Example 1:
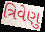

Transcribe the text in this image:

ત્રિવેણુ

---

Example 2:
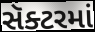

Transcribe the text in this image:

સૅક્ટરમાં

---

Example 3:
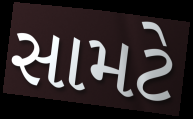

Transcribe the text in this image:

સામટે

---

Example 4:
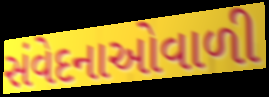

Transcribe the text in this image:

સંવેદનાઓવાળી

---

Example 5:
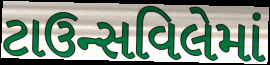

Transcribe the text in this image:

ટાઉન્સવિલેમાં